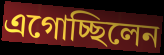
এগোচ্ছিলেন